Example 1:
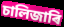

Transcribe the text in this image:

চালিজাৰি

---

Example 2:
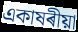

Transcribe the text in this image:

একাষৰীয়া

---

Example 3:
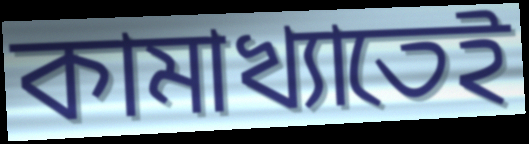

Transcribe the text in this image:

কামাখ্যাতেই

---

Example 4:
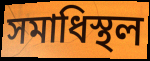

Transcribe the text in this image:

সমাধিস্থল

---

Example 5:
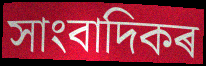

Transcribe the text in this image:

সাংবাদিকৰ